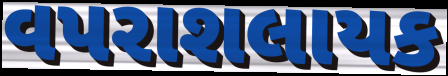
વપરાશલાયક